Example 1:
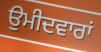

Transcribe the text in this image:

ਉਮੀਦਵਾਰਾਂ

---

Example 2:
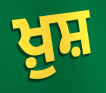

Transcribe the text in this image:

ਖ਼ੁਸ਼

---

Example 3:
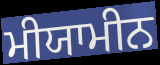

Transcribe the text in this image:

ਮੀਯਾਮੀਨ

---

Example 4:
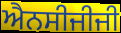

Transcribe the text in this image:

ਐਨਸੀਜੀਜੀ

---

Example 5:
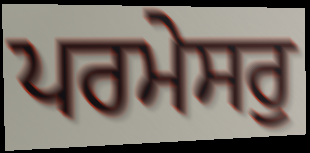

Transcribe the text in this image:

ਪਰਮੇਸਰੁ